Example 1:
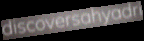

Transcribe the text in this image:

discoversahyadri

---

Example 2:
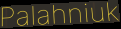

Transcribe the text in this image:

Palahniuk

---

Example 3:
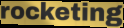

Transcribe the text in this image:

rocketing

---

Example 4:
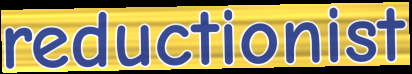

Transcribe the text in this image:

reductionist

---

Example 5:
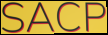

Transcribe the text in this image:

SACP